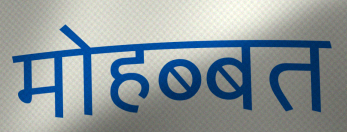
मोहब्‍बत